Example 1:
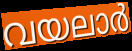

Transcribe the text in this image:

വയലാർ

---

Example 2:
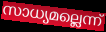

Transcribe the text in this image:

സാധ്യമല്ലെന്ന്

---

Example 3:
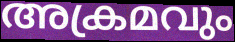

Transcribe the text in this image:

അക്രമവും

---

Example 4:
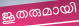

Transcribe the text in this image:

ജൂതരുമായി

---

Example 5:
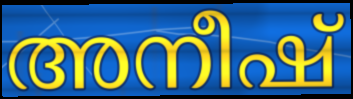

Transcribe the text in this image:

അനീഷ്